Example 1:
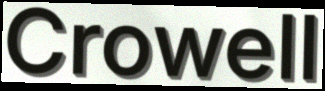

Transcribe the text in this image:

Crowell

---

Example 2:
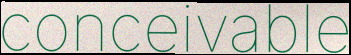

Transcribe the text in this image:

conceivable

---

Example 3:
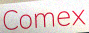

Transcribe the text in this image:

Comex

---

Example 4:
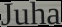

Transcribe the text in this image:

Juha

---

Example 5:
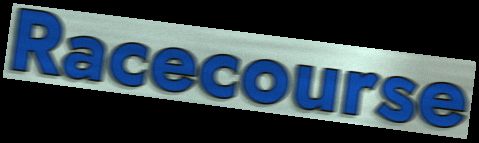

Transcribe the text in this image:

Racecourse